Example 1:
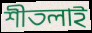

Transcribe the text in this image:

শীতলাই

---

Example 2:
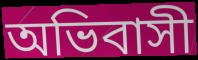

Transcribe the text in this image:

অভিবাসী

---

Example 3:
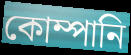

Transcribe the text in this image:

কোম্পানি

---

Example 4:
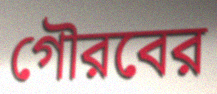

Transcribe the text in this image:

গৌরবের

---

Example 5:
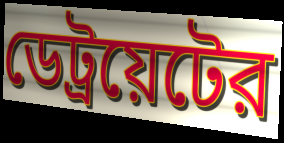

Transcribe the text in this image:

ডেট্রয়েটের